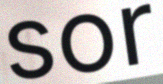
sor